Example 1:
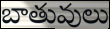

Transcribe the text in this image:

బాతువులు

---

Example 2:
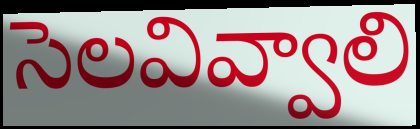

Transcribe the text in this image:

సెలవివ్వాలి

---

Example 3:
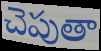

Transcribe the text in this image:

చెపుతా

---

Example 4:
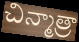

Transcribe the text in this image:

చిన్మాత్రా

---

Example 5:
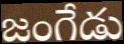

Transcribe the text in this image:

జంగేడు